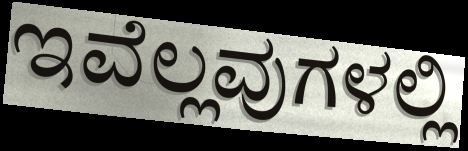
ಇವೆಲ್ಲವುಗಳಲ್ಲಿ